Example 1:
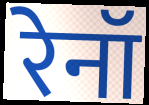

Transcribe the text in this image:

रेनॉ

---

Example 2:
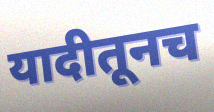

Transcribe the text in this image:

यादीतूनच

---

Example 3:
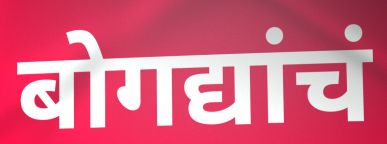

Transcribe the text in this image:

बोगद्यांचं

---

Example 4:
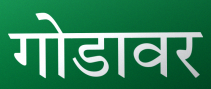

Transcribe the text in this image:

गोडावर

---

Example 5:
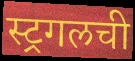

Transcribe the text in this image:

स्ट्रगलची